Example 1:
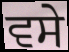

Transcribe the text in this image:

ਵਸੇ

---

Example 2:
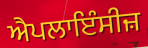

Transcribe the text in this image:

ਐਪਲਾਇੰਸੀਜ਼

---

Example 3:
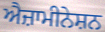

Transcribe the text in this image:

ਐਜ਼ਾਮੀਨੇਸ਼ਨ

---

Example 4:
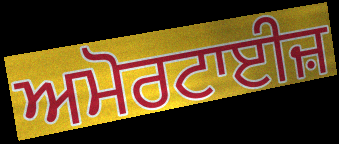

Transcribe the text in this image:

ਅਮੋਰਟਾਈਜ਼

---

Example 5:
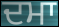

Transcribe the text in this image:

ਦਮਾ